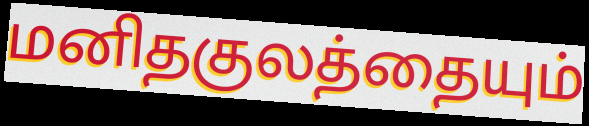
மனிதகுலத்தையும்